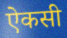
ऐकसी